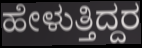
ಹೇಳುತ್ತಿದ್ದರ